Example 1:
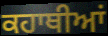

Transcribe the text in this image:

ਕਹਾਥੀਆਂ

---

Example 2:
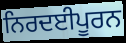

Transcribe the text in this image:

ਨਿਰਦਈਪੂਰਨ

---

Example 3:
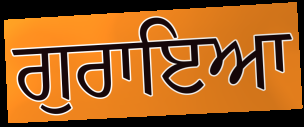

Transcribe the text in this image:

ਗੁਰਾਇਆ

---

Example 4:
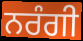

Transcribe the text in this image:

ਨਰੰਗੀ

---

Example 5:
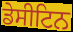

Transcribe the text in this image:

ਡੇਸੀਟਿਨ